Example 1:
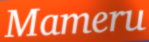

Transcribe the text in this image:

Mameru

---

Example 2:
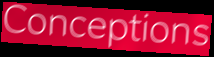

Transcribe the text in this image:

Conceptions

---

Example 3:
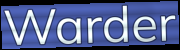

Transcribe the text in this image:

Warder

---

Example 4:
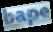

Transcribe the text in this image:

bape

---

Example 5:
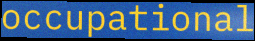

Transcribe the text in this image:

occupational